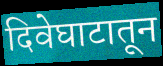
दिवेघाटातून